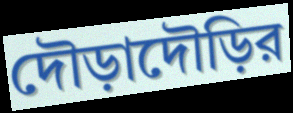
দৌড়াদৌড়ির